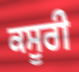
ਕਸੂਰੀ